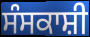
ਸੰਸਕਾਸ਼ੀ